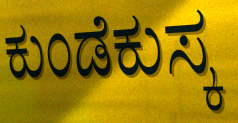
ಕುಂಡೆಕುಸ್ಕ